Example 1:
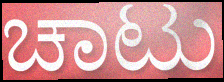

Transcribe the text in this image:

ಚಾಟು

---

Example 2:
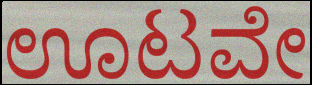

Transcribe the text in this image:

ಊಟವೇ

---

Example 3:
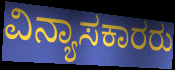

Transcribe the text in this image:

ವಿನ್ಯಾಸಕಾರರು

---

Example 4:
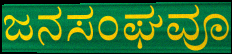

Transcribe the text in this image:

ಜನಸಂಘವೂ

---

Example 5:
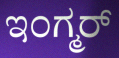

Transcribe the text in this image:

ಇಂಗ್ಮರ್